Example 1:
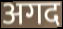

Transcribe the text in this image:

अगद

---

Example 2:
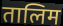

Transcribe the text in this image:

तालिम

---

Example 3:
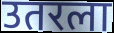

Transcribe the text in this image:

उतरला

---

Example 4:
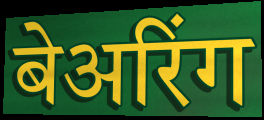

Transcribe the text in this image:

बेअरिंग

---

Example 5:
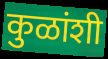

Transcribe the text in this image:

कुळांशी